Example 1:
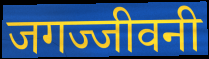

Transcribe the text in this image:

जगज्जीवनी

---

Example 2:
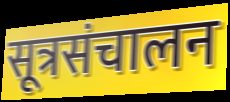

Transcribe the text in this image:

सूत्रसंचालन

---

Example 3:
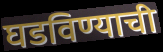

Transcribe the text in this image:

घडविण्याची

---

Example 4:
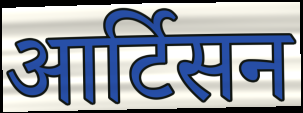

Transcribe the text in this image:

आर्टिसन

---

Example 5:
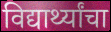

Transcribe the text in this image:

विद्यार्थ्यांचा